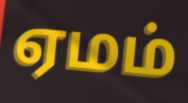
ஏமம்